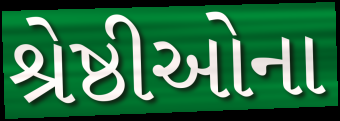
શ્રેષ્ઠીઓના